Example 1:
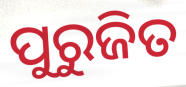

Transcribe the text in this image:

ପୁରୁଜିତ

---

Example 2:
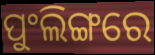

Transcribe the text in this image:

ପୁଂଲିଙ୍ଗରେ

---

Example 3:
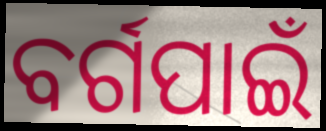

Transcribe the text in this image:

ବର୍ଗପାଇଁ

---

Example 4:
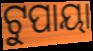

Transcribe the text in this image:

ଟୁପାୟା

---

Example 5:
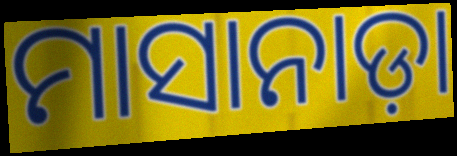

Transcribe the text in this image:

ମାସାନାଡ଼ା